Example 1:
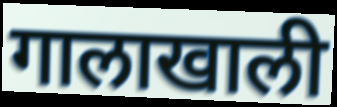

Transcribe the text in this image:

गालाखाली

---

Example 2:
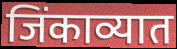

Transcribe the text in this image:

जिंकाव्यात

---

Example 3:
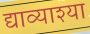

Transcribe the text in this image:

द्याव्याश्या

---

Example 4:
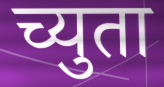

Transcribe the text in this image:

च्युता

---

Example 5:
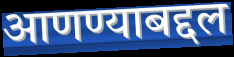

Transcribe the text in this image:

आणण्याबद्दल